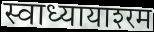
स्वाध्यायाश्रम